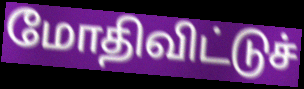
மோதிவிட்டுச்